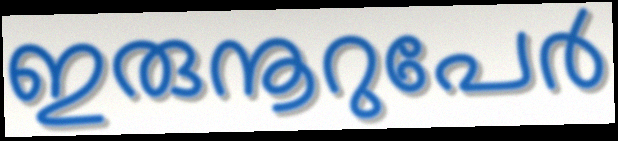
ഇരുനൂറുപേർ